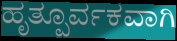
ಹೃತ್ಪೂರ್ವಕವಾಗಿ